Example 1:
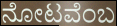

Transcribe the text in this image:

ನೋಟವೆಂಬ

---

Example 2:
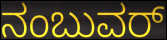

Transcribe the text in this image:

ನಂಬುವರ್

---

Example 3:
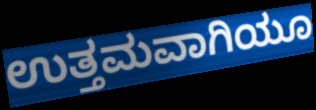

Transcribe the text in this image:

ಉತ್ತಮವಾಗಿಯೂ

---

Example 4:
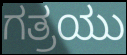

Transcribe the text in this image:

ಗತ್ರಯು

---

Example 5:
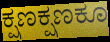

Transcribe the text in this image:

ಕ್ಷಣಕ್ಷಣಕೂ